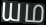
யம